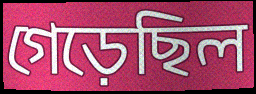
গেড়েছিল